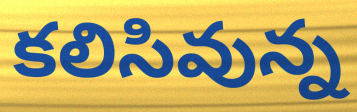
కలిసివున్న